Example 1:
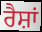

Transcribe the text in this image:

ਰੈਸ਼ਾਂ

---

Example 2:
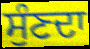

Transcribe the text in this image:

ਸੁੰਣਦਾ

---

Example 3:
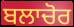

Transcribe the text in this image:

ਬਲਾਚੋਰ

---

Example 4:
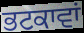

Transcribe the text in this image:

ਭਟਕਾਵਾਂ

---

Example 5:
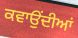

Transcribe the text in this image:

ਕਵਾਉਂਦੀਆਂ